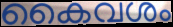
കൈവശം